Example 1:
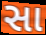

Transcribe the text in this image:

સા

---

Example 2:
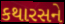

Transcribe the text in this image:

કથારસને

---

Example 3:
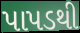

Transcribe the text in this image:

પાપડથી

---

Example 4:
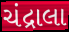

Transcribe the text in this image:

ચંદ્રાલા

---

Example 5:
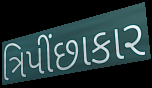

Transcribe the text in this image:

ત્રિપીંછાકાર